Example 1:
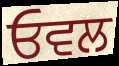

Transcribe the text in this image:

ਓਵਲ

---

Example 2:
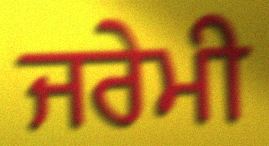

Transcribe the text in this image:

ਜਰੇਮੀ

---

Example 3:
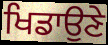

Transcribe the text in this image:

ਖਿਡਾਉਣੇ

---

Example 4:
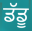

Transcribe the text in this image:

ਡੱਡੂ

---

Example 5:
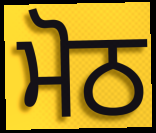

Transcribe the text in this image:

ਮੋਠ